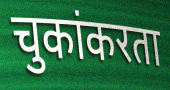
चुकांकरता